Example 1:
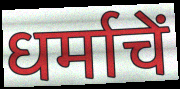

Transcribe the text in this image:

धर्माचें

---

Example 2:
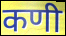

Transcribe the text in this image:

कणी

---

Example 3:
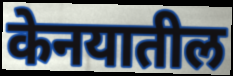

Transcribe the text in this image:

केनयातील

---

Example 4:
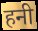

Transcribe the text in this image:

हनी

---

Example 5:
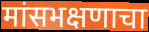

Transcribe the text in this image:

मांसभक्षणाचा